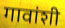
गावांशी